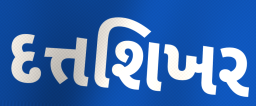
દત્તશિખર